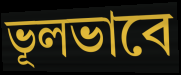
ভূলভাবে